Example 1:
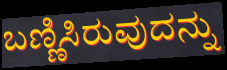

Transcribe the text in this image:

ಬಣ್ಣಿಸಿರುವುದನ್ನು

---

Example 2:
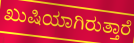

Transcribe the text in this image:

ಖುಷಿಯಾಗಿರುತ್ತಾರೆ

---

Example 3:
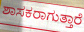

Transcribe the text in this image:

ಶಾಸಕರಾಗುತ್ತಾರೆ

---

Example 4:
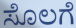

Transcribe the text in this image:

ಸೊಲಗೆ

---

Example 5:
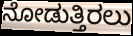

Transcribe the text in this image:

ನೋಡುತ್ತಿರಲು